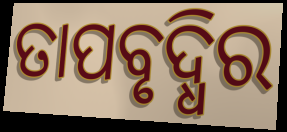
ତାପବୃଦ୍ଧିର